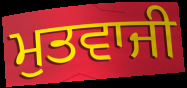
ਮੁਤਵਾਜੀ